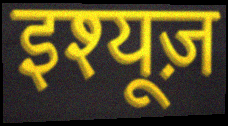
इश्यूज़